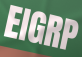
EIGRP